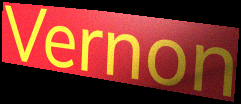
Vernon